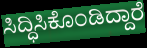
ಸಿದ್ಧಿಸಿಕೊಂಡಿದ್ದಾರೆ